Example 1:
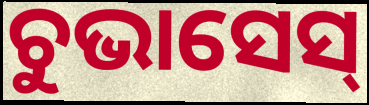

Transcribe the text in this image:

ଚୁଭାସେସ୍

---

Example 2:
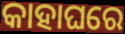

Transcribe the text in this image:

କାହାଘରେ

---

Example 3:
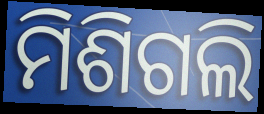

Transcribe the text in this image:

ମିଶିଗଲି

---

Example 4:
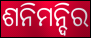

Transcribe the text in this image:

ଶନିମନ୍ଦିର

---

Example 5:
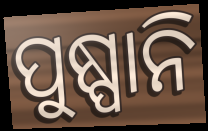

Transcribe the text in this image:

ପୁଷ୍ପାନି